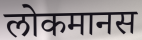
लोकमानस